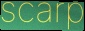
scarp